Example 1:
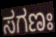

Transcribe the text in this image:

ಸಗಣಃ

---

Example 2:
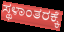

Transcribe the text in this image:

ಸ್ಥಳಾಂತರಕ್ಕೆ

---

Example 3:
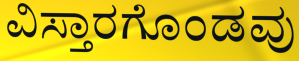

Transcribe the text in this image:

ವಿಸ್ತಾರಗೊಂಡವು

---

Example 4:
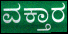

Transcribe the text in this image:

ವಕ್ತಾರ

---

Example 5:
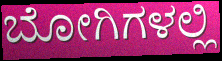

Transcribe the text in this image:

ಬೋಗಿಗಳಲ್ಲಿ